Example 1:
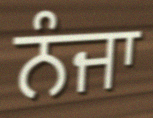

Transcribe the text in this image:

ਨੰਜਾ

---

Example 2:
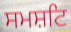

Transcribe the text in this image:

ਸਮਸ਼ਟਿ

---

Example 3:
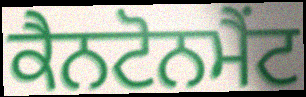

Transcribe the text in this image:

ਕੈਨਟੋਨਮੈਂਟ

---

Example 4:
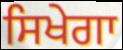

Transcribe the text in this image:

ਸਿਖੇਗਾ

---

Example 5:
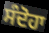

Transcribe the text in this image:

ਸੰਦੋਹਾ